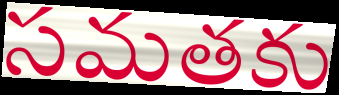
సమతకు